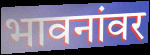
भावनांवर